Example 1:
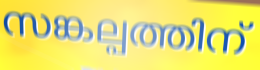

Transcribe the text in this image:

സങ്കല്പത്തിന്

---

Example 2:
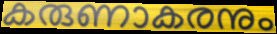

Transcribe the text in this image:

കരുണാകരനും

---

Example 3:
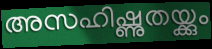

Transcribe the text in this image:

അസഹിഷ്ണുതയ്ക്കും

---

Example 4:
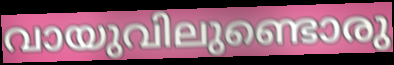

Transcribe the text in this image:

വായുവിലുണ്ടൊരു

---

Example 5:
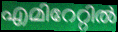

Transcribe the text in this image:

എമിറേറ്റിൽ